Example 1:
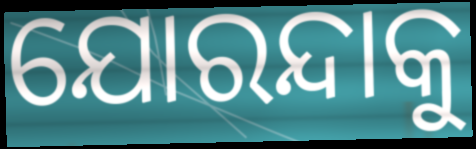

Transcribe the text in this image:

ଯୋରନ୍ଦାକୁ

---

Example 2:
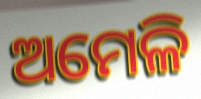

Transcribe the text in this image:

ଅମେଳି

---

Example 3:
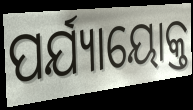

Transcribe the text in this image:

ପର୍ଯ୍ୟାୟୋକ୍ତ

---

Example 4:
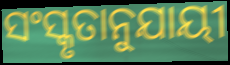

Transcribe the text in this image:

ସଂସ୍କୃତାନୁଯାୟୀ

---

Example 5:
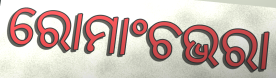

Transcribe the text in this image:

ରୋମାଂଚଭରା